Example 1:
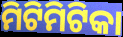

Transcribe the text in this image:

ମିଟିମିଟିକା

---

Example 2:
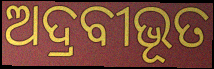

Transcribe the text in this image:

ଅଦ୍ରବୀଭୂତ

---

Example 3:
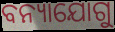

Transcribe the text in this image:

ବନ୍ୟାଯୋଗୁ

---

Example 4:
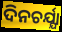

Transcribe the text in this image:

ଦିନଚର୍ଯ୍ଯା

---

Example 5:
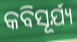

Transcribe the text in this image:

କବିସୂର୍ଯ୍ଯ